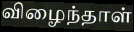
விழைந்தாள்